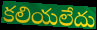
కలియలేదు